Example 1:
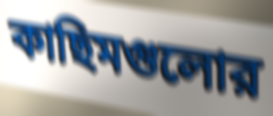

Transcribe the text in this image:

কাছিমগুলোর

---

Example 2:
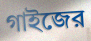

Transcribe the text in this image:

গাইজের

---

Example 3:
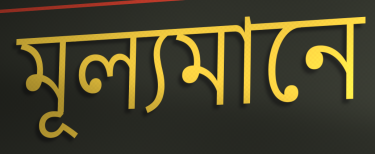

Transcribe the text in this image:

মূল্যমানে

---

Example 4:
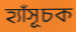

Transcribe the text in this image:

হ্যাঁসূচক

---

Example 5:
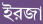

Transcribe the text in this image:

ইরজা